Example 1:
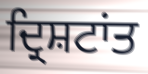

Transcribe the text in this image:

ਦ੍ਰਿਸ਼ਟਾਂਤ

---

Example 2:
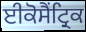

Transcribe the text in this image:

ਈਕੋਸੈਂਟ੍ਰਿਕ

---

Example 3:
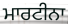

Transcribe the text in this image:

ਮਾਰਟੀਨਾ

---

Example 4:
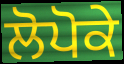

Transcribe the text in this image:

ਲੋਪੋਕੇ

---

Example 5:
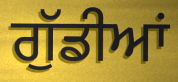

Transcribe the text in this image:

ਗੁੱਡੀਆਂ